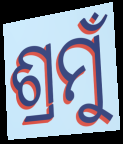
ଶ୍ରମୁଁ